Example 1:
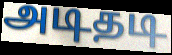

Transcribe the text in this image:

அடிதடி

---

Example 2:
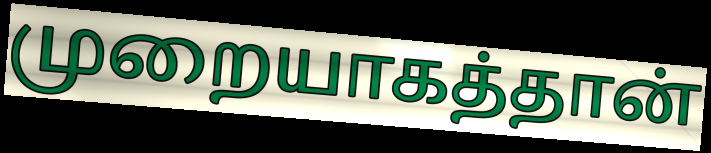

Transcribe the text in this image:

முறையாகத்தான்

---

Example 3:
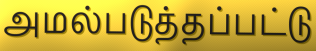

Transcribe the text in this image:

அமல்படுத்தப்பட்டு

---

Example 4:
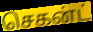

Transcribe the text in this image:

செகன்ட்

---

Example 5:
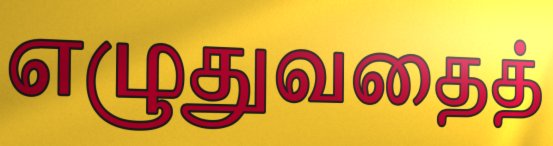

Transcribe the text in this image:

எழுதுவதைத்